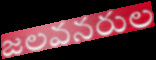
జలవనరుల